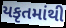
યકૃતમાંથી